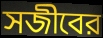
সজীবের